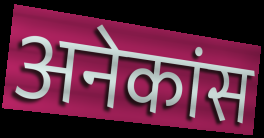
अनेकांस